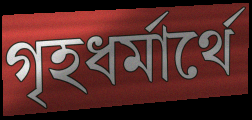
গৃহধর্মার্থে